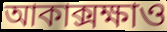
আকাক্সক্ষাও